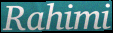
Rahimi